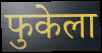
फुकेला